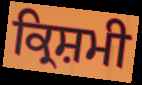
ਕ੍ਰਿਸ਼ਮੀ